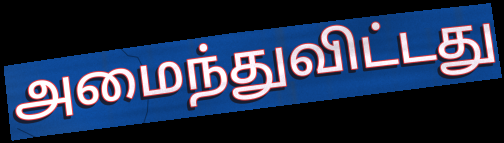
அமைந்துவிட்டது